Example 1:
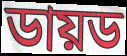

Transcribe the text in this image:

ডায়ড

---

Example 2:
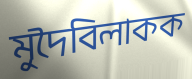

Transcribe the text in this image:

মুদৈবিলাকক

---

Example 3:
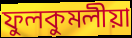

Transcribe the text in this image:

ফুলকুমলীয়া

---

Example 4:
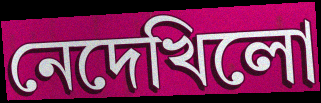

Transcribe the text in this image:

নেদেখিলো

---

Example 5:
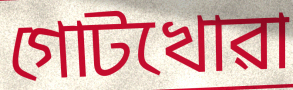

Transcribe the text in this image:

গোটখোৱা